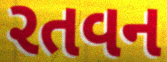
રતવન